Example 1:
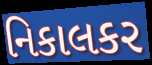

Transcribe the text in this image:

નિકાલકર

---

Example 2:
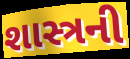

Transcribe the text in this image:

શાસ્ત્રની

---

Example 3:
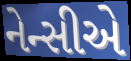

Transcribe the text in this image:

નેન્સીએ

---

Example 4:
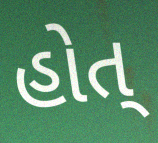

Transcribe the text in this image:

હોત્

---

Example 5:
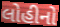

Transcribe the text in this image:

લોહીનો